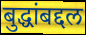
बुद्धांबद्दल